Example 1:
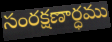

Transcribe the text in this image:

సంరక్షణార్ధము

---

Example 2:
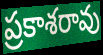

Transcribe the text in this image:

ప్రకాశరావు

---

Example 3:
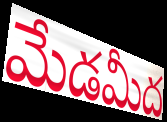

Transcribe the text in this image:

మేడమీద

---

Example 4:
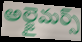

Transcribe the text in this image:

అల్జైమర్స్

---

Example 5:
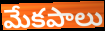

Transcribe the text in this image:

మేకపాలు